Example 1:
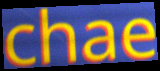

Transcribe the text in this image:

chae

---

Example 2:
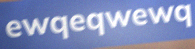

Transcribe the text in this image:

ewqeqwewq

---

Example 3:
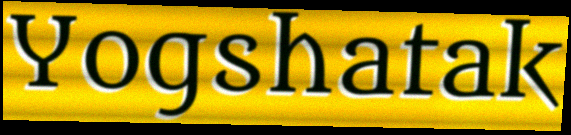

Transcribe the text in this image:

Yogshatak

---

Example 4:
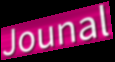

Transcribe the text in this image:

Jounal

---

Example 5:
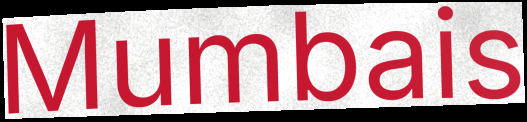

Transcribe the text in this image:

Mumbais